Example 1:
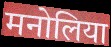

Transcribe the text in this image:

मनोलिया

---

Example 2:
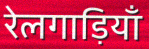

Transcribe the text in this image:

रेलगाड़ियाँ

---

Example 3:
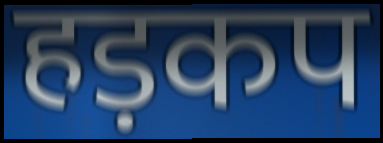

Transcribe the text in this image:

हड़कप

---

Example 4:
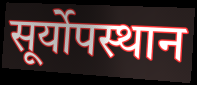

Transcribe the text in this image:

सूर्योपस्थान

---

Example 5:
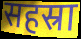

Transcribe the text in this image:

सहस्रा